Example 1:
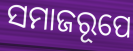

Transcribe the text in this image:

ସମାଜରୂପେ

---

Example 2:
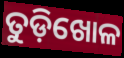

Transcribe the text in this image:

ତୁଡ଼ିଖୋଳ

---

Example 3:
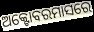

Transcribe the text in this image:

ଅକ୍ଟୋବରମାସରେ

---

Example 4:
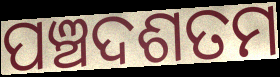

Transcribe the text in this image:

ପଞ୍ଚଦଶତମ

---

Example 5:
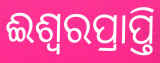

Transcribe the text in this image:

ଈଶ୍ଵରପ୍ରାପ୍ତି